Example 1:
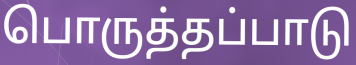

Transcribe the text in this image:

பொருத்தப்பாடு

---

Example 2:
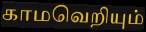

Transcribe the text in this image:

காமவெறியும்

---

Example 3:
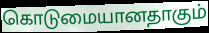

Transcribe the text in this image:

கொடுமையானதாகும்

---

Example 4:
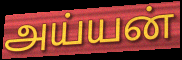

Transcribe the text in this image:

அய்யன்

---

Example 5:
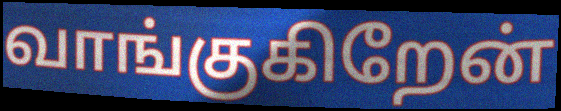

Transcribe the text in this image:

வாங்குகிறேன்